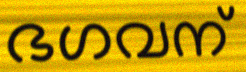
ഭഗവന്